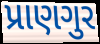
પ્રાણગુર